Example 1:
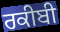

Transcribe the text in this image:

ਰਕੀਬੀ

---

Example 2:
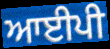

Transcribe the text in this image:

ਆਈਪੀ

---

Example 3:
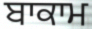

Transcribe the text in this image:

ਬਾਕਾਮ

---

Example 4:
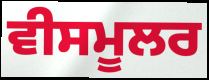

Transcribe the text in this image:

ਵੀਸਮੂਲਰ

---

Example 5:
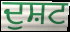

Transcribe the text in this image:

ਦੁਸ਼ਟ